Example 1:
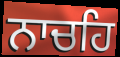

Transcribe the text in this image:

ਨਾਚਹਿ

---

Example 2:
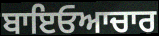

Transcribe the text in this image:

ਬਾਇਓਆਚਾਰ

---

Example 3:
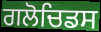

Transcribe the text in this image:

ਗਲੋਚਿਡਸ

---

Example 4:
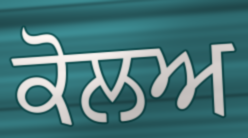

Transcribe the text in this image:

ਕੋਲਅ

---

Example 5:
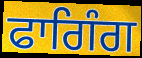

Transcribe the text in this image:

ਫਾਗਿੰਗ